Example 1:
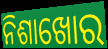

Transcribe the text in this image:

ନିଶାଖୋର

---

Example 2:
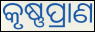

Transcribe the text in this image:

କୃଷ୍ଣପ୍ରାଣ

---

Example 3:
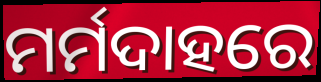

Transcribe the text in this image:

ମର୍ମଦାହରେ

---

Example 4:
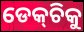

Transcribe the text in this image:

ଡେକ୍‌ଚିକୁ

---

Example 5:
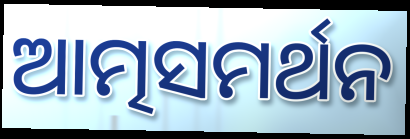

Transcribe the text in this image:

ଆତ୍ମସମର୍ଥନ